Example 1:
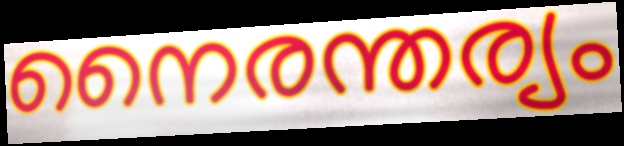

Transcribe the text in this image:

നൈരന്തര്യം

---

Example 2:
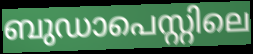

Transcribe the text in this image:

ബുഡാപെസ്റ്റിലെ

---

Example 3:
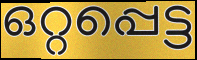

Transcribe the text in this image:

ഒറ്റപ്പെട്ട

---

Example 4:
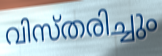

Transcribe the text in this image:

വിസ്തരിച്ചും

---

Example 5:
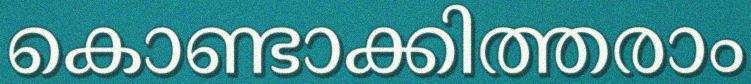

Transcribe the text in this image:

കൊണ്ടാക്കിത്തരാം